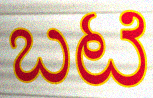
ಬಟೆ